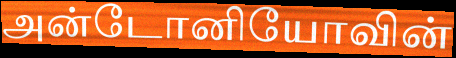
அன்டோனியோவின்